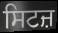
ਸਿਟਜ਼